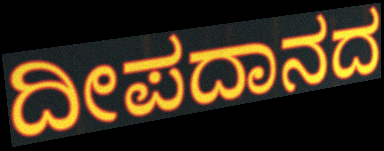
ದೀಪದಾನದ